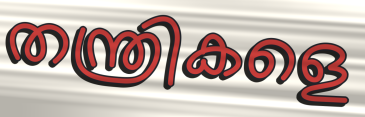
തന്ത്രികളെ